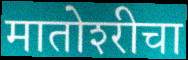
मातोश्रीचा